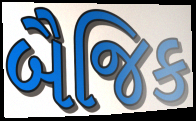
બૈજિક